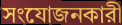
সংযোজনকারী